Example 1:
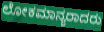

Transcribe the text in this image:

ಲೋಕಮಾನ್ಯರಾದರು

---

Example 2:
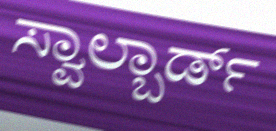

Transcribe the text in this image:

ಸ್ವಾಲ್ಬಾರ್ಡ್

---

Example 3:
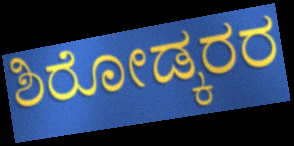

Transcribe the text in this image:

ಶಿರೋಡ್ಕರರ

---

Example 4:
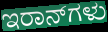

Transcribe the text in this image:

ಇರಾನ್‌ಗಳು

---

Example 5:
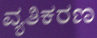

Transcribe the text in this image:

ವ್ಯತಿಕರಣ